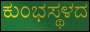
ಕುಂಭಸ್ಥಳದ